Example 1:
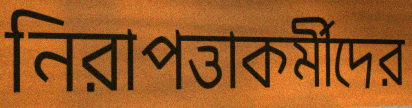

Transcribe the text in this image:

নিরাপত্তাকর্মীদের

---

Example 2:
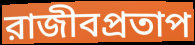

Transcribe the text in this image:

রাজীবপ্রতাপ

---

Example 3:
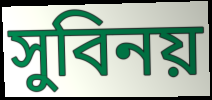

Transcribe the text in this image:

সুবিনয়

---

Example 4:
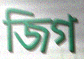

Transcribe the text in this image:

জিগ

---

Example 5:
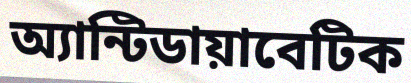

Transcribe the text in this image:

অ্যান্টিডায়াবেটিক